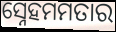
ସ୍ନେହମମତାର